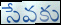
సేవకు